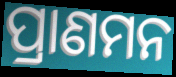
ପ୍ରାଣମନ